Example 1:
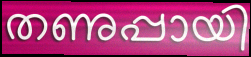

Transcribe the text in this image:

തണുപ്പായി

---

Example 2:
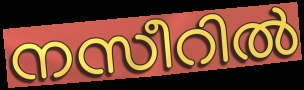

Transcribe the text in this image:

നസീറിൽ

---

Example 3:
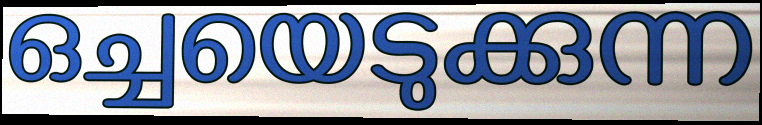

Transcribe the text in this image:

ഒച്ചയെടുക്കുന്ന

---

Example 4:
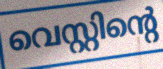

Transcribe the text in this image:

വെസ്റ്റിന്റെ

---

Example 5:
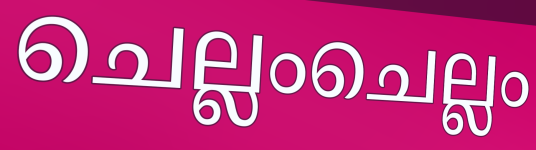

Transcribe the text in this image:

ചെല്ലംചെല്ലം